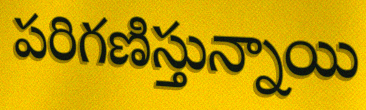
పరిగణిస్తున్నాయి